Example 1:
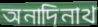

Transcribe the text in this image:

অনাদিনাথ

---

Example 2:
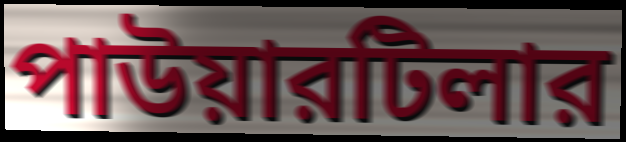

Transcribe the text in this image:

পাউয়ারটিলার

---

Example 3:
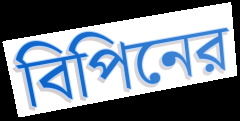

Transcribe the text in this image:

বিপিনের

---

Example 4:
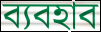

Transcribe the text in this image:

ব্যবহাব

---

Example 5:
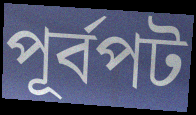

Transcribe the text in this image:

পূর্বপট